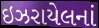
ઇઝરાયેલનાં